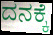
ದನಕ್ಕೆ